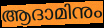
ആദാമിനും